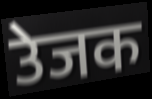
उेजक